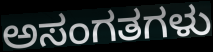
ಅಸಂಗತಗಳು